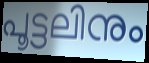
പൂട്ടലിനും